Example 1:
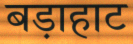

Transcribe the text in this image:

बड़ाहाट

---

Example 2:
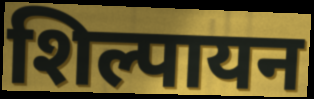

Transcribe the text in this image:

शिल्पायन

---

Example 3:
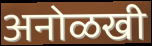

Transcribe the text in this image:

अनोळखी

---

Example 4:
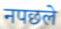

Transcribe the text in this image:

नपछले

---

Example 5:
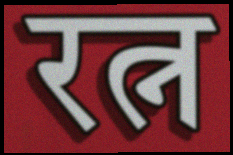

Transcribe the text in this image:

रत्न